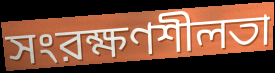
সংরক্ষণশীলতা